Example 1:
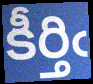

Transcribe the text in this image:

కీర్తిఁ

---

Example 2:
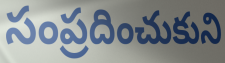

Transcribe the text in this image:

సంప్రదించుకుని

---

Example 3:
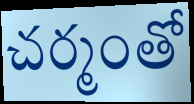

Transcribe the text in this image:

చర్మంతో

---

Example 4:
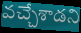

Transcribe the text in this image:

వచ్చేశాడని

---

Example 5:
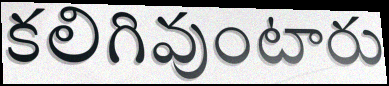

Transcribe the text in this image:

కలిగివుంటారు